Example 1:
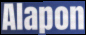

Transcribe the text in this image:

Alapon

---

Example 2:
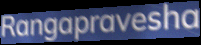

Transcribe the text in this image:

Rangapravesha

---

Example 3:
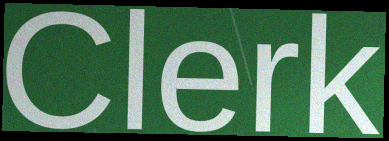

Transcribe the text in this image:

Clerk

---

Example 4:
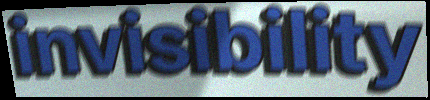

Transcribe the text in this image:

invisibility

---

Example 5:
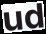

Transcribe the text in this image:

ud